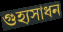
গুহ্যসাধন